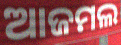
ଆଜମଲ